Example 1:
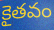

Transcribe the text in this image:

కైతవం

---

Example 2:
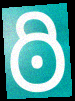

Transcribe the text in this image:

ఠి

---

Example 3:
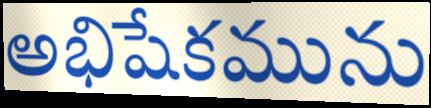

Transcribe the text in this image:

అభిషేకమును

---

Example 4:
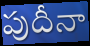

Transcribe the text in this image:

పుదీనా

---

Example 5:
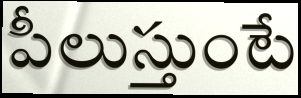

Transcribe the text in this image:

పీలుస్తుంటే